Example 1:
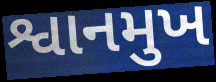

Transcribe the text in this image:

શ્વાનમુખ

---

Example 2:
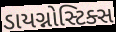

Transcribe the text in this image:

ડાયગ્નોસ્ટિક્સ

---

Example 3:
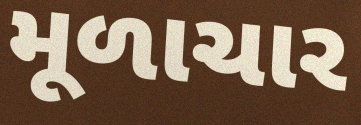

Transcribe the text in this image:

મૂળાચાર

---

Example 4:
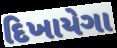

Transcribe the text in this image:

દિખાયેગા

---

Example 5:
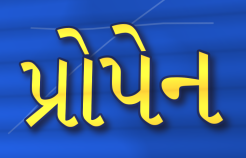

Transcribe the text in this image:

પ્રોપેન